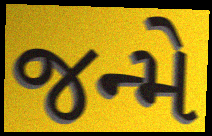
જન્મે